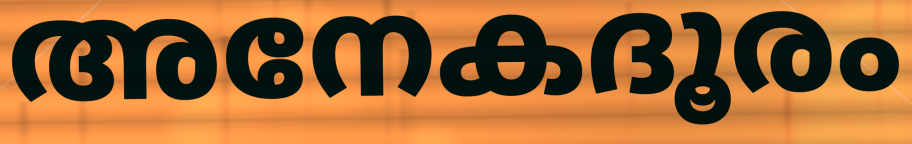
അനേകദൂരം